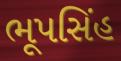
ભૂપસિંહ